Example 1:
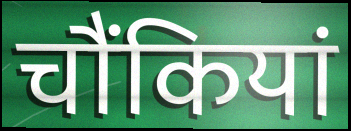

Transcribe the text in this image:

चौंकियां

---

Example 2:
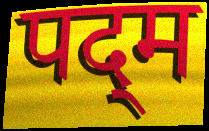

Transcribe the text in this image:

पद्‌म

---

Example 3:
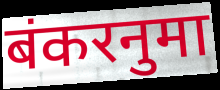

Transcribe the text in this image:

बंकरनुमा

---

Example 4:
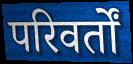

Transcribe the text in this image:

परिवर्तों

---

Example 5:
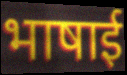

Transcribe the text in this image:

भाषाई